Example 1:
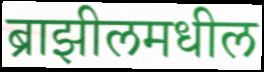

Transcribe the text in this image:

ब्राझीलमधील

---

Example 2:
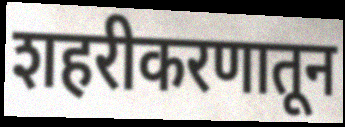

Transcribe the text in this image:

शहरीकरणातून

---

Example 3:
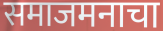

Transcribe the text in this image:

समाजमनाचा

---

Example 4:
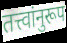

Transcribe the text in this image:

तत्त्वांनुरूप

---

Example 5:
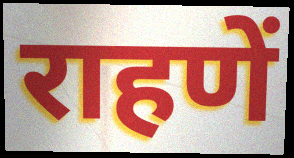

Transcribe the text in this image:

राहणें